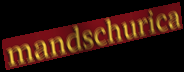
mandschurica